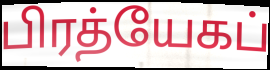
பிரத்யேகப்